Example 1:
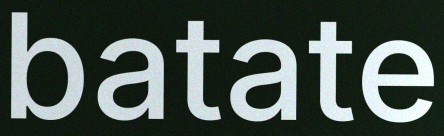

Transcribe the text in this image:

batate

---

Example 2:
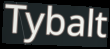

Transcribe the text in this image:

Tybalt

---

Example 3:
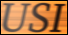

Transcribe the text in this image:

USI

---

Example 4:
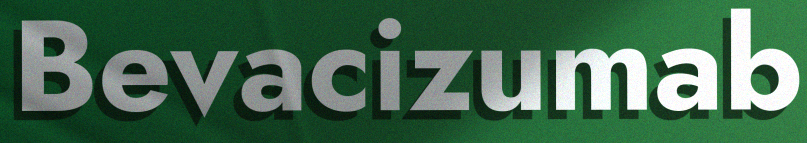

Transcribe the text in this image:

Bevacizumab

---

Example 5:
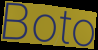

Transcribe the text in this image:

Boto